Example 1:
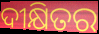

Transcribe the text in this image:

ଦୀକ୍ଷିତର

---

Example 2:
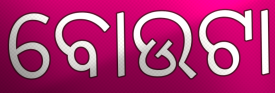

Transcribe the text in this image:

ବୋଉଟା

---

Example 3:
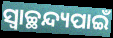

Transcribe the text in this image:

ସ୍ୱାଚ୍ଛନ୍ଦ୍ୟପାଇଁ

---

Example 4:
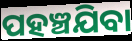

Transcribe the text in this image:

ପହଞ୍ଚଯିବା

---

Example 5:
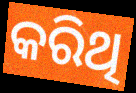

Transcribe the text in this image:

କରିଥି